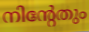
നിന്റേതും